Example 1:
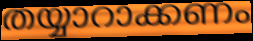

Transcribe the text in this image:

തയ്യാറാക്കണം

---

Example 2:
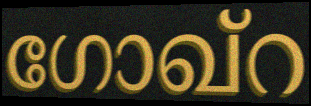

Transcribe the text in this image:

ഗോഖ്റ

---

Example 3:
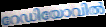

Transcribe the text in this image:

റേഡിയോവിൽ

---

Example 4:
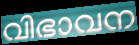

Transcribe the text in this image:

വിഭാവന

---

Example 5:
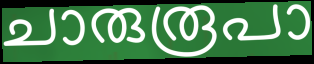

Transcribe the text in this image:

ചാരുരൂപാ